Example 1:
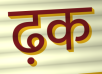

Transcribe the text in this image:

ढ़क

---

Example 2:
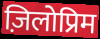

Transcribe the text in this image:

ज़िलोप्रिम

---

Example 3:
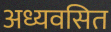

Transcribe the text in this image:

अध्यवसित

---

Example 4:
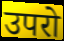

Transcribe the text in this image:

उपरो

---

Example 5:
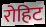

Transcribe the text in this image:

रोहिट